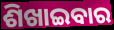
ଶିଖାଇବାର